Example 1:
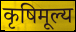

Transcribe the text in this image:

कृषिमूल्य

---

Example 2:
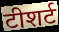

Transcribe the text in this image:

टीशर्ट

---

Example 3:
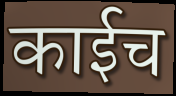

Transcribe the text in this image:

काईच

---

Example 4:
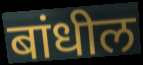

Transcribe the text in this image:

बांधील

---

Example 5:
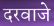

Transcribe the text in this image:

दरवाजे